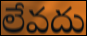
లేవదు